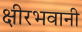
क्षीरभवानी